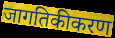
जागतिकीकरण